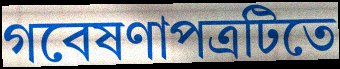
গবেষণাপত্রটিতে